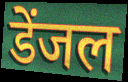
डेंजल